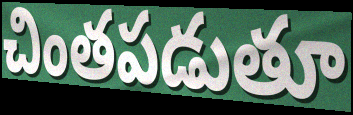
చింతపడుతూ